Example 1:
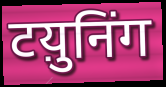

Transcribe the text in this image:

टय़ुनिंग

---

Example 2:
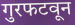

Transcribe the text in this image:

गुरफटवून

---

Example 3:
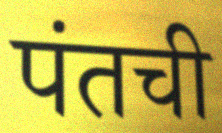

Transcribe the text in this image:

पंतची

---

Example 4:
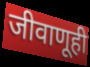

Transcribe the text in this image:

जीवाणूही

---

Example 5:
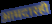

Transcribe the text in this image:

आमदारही